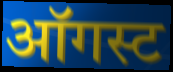
ऑगस्ट